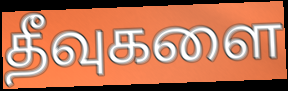
தீவுகளை